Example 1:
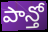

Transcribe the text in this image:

పాన్తో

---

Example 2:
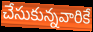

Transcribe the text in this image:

చేసుకున్నవారికే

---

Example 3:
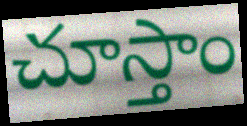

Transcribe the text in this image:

చూస్తాం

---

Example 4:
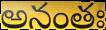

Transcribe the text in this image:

అనంతః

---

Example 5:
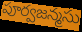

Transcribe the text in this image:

పూర్వజన్మసు